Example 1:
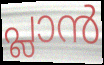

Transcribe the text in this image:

പ്ലാൻ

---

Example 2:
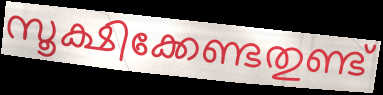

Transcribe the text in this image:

സൂക്ഷിക്കേണ്ടതുണ്ട്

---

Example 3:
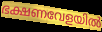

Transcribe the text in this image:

ഭക്ഷണവേളയിൽ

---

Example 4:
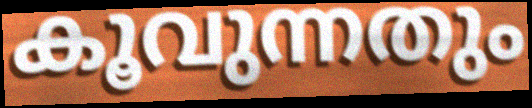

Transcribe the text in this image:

കൂവുന്നതും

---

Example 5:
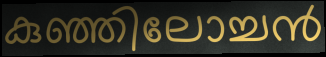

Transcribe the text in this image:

കുഞ്ഞിലോച്ചൻ